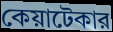
কেয়াটেকার